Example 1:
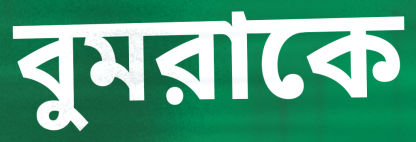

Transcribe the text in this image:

বুমরাকে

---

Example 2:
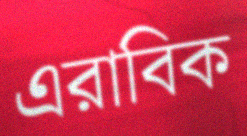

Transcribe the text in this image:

এরাবিক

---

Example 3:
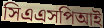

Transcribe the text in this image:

সিএএসপিআই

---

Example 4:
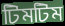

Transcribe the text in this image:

টিমটিম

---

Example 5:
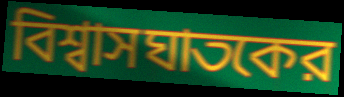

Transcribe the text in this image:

বিশ্বাসঘাতকের